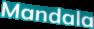
Mandala